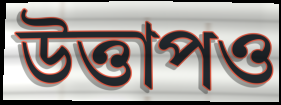
উত্তাপও